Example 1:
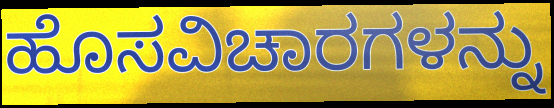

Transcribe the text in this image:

ಹೊಸವಿಚಾರಗಳನ್ನು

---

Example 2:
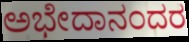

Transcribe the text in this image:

ಅಭೇದಾನಂದರ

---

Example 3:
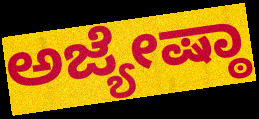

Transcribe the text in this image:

ಅಜ್ಯೇಷ್ಠಾ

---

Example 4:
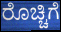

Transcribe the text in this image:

ರೊಚ್ಚಿಗೆ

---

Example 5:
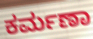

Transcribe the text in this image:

ಕರ್ಮಣಾ